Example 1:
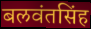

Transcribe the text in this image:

बलवंतसिंह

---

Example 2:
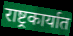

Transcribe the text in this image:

राष्ट्रकार्यात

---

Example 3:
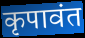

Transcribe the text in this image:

कृपावंत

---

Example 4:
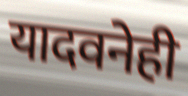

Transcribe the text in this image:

यादवनेही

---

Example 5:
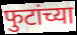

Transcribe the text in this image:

फुटांच्या